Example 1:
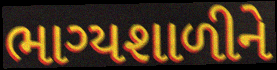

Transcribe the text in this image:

ભાગ્યશાળીને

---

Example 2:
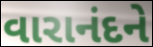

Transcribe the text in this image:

વારાનંદને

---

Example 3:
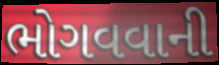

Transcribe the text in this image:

ભોગવવાની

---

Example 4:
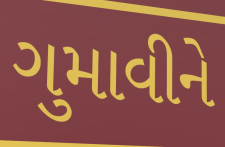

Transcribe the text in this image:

ગુમાવીને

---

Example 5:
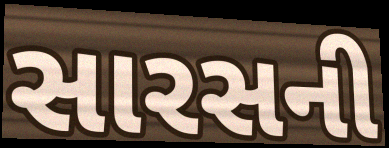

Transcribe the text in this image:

સારસની